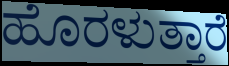
ಹೊರಳುತ್ತಾರೆ